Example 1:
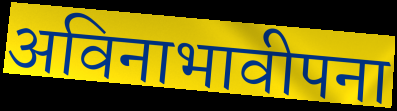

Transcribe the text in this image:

अविनाभावीपना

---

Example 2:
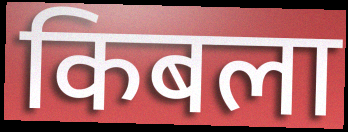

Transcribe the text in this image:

किबला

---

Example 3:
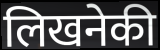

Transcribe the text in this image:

लिखनेकी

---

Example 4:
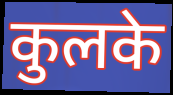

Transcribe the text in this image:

कुलके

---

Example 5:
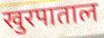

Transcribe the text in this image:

खुरपाताल